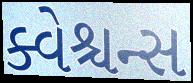
ક્વેશ્ચન્સ